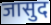
जासुद